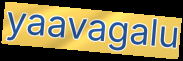
yaavagalu